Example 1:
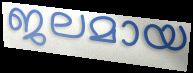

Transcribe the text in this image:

ജലമായ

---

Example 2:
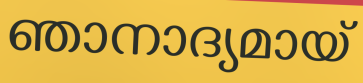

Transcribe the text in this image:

ഞാനാദ്യമായ്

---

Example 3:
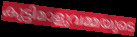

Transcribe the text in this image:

കുട്ടിമാളുവമ്മയുടെ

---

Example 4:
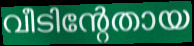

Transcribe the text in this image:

വീടിന്റേതായ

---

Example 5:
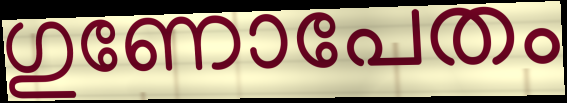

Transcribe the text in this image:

ഗുണോപേതം